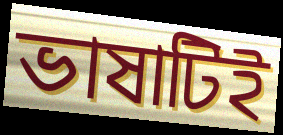
ভাষাটিই